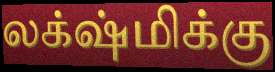
லக்‌ஷ்மிக்கு